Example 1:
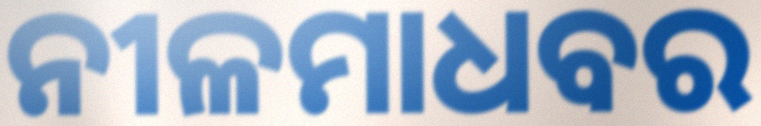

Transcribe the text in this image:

ନୀଳମାଧବର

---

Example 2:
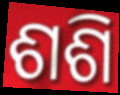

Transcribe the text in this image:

ଶଶି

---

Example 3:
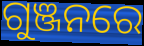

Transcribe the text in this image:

ଗୁଞ୍ଜନରେ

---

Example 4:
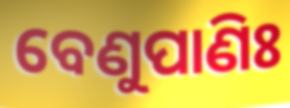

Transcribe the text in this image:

ବେଣୁପାଣିଃ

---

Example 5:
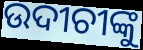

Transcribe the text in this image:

ଉଦୀଚୀଙ୍କୁ